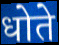
धोते